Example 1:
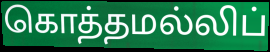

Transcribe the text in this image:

கொத்தமல்லிப்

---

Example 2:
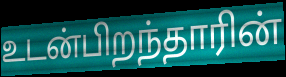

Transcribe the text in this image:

உடன்பிறந்தாரின்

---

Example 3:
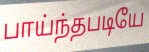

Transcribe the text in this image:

பாய்ந்தபடியே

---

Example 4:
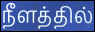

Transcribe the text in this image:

நீளத்தில்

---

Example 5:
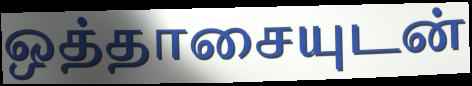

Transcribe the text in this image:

ஒத்தாசையுடன்